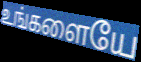
உங்களையே